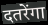
दतरेंगा